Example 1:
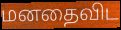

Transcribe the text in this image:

மனதைவிட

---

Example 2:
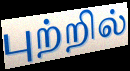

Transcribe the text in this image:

புற்றில்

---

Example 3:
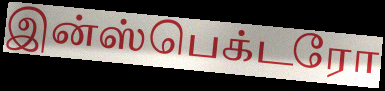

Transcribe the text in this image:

இன்ஸ்பெக்டரோ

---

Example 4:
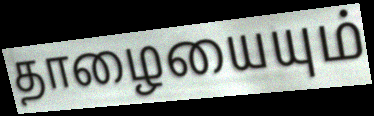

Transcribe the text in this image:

தாழையையும்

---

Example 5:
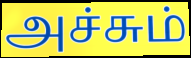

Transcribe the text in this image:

அச்சும்